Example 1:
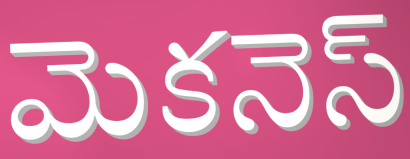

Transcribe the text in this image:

మెకనెస్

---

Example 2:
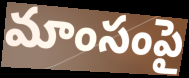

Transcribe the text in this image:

మాంసంపై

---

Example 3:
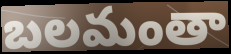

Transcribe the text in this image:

బలమంతా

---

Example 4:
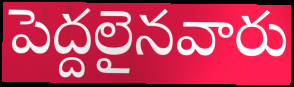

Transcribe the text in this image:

పెద్దలైనవారు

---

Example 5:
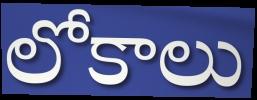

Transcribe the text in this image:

లోకాలు